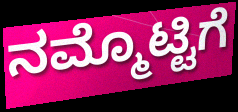
ನಮ್ಮೊಟ್ಟಿಗೆ